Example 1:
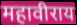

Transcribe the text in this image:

महावीराय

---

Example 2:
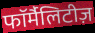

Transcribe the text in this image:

फॉर्मैलिटीज़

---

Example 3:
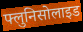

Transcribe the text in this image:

फ्लुनिसोलाइड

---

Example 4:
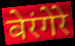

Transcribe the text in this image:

बेरंगेरे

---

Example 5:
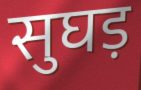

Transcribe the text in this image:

सुघड़